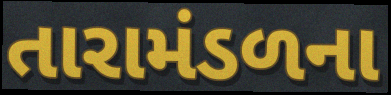
તારામંડળના